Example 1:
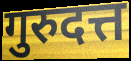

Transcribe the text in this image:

गुरुदत्त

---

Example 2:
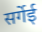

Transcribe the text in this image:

सर्गेई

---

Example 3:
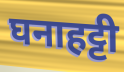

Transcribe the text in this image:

घनाहट्टी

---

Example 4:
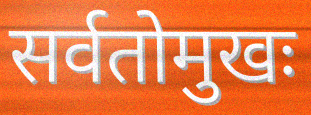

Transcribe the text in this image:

सर्वतोमुखः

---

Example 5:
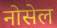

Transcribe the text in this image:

नोसेल